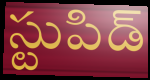
స్టుపిడ్